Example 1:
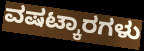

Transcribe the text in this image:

ವಷಟ್ಕಾರಗಳು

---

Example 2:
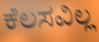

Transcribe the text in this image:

ಕೆಲಸವಿಲ್ಲ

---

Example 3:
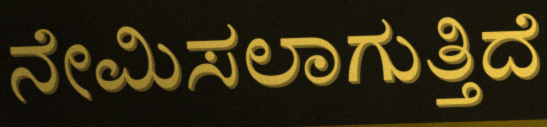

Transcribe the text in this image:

ನೇಮಿಸಲಾಗುತ್ತಿದೆ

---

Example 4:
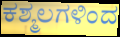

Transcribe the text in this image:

ಕಶ್ಮಲಗಳಿಂದ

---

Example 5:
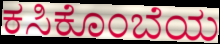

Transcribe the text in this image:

ಕಸಿಕೊಂಬೆಯ